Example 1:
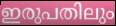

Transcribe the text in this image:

ഇരുപതിലും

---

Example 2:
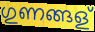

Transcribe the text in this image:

ഗുണങ്ങള്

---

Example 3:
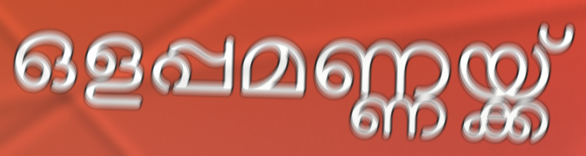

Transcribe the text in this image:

ഒളപ്പമണ്ണയ്ക്ക്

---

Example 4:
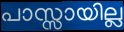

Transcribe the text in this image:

പാസ്സായില്ല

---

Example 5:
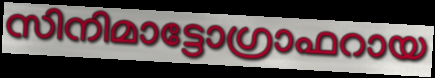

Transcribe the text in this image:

സിനിമാട്ടോഗ്രാഫറായ